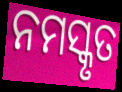
ନମସ୍କୃତ